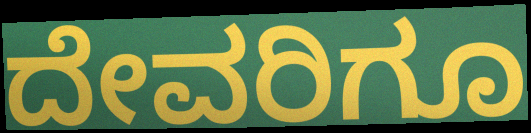
ದೇವರಿಗೂ